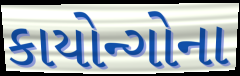
કાયોન્ગોના